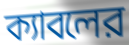
ক্যাবলের